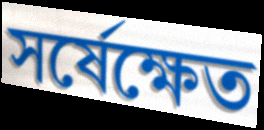
সর্ষেক্ষেত